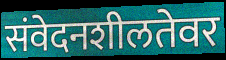
संवेदनशीलतेवर